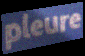
pleure